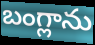
బంగ్లాను